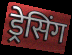
ड्रेसिंग